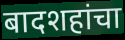
बादशहांचा